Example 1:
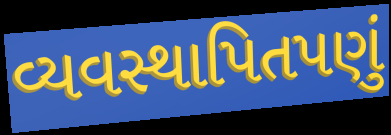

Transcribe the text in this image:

વ્યવસ્થાપિતપણું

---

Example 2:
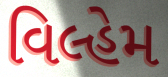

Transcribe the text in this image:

વિલ્હેમ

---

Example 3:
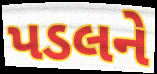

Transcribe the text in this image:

પડલને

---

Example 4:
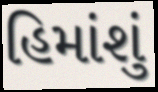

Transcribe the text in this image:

હિમાંશું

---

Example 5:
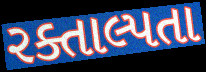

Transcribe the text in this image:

રક્તાલ્પતા